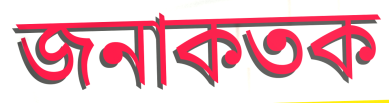
জনাকতক